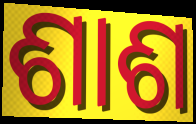
ଶାଶ